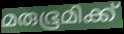
മരുഭൂമിക്ക്